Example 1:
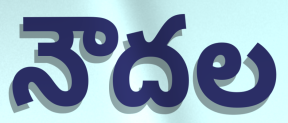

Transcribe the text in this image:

నౌదల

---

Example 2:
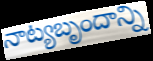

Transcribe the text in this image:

నాట్యబృందాన్ని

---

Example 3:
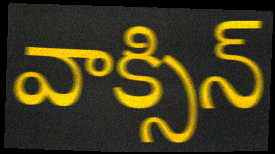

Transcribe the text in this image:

వాక్సిన్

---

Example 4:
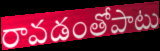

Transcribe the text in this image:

రావడంతోపాటు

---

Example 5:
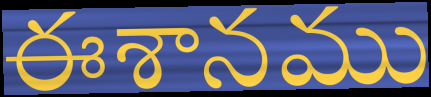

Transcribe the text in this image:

ఈశానము